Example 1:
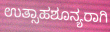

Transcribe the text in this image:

ಉತ್ಸಾಹಶೂನ್ಯರಾಗಿ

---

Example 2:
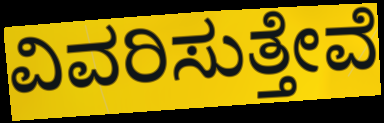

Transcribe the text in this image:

ವಿವರಿಸುತ್ತೇವೆ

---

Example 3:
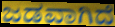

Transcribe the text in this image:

ಜಡವಾಗಿದೆ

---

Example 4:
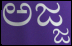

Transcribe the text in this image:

ಅಜ್ಜ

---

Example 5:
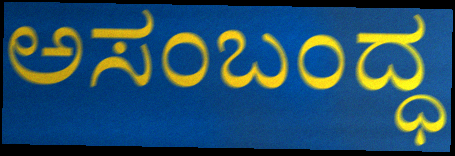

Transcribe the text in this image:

ಅಸಂಬಂದ್ಧ